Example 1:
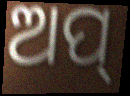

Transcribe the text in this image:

ଅପ୍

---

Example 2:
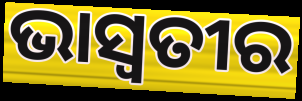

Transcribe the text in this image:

ଭାସ୍ଵତୀର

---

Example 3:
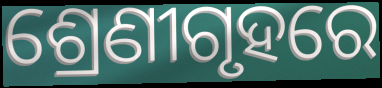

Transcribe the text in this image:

ଶ୍ରେଣୀଗୃହରେ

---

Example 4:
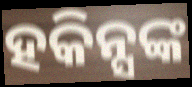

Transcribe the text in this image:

ହକିନ୍ସଙ୍କ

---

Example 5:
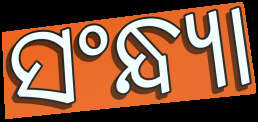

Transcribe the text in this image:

ସଂନ୍ଧ୍ଯା